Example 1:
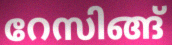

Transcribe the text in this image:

റേസിങ്ങ്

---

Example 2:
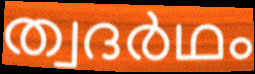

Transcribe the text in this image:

ത്വദർഥം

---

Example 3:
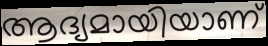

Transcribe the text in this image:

ആദ്യമായിയാണ്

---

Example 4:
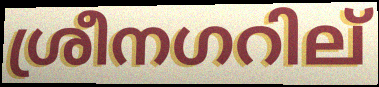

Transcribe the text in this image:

ശ്രീനഗറില്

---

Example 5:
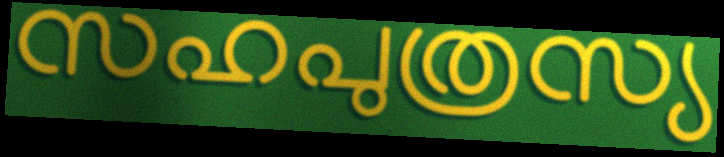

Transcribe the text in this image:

സഹപുത്രസ്യ